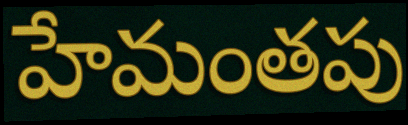
హేమంతపు